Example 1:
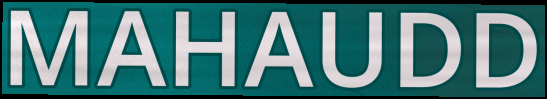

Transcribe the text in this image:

MAHAUDD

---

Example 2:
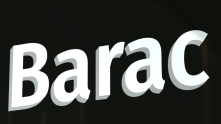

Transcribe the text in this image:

Barac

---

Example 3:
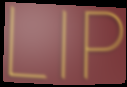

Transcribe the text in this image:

LIP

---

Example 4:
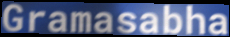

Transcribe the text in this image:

Gramasabha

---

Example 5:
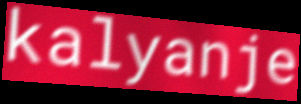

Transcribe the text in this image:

kalyanje